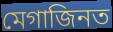
মেগাজিনত